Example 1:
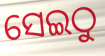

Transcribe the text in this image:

ସେଇଠୁ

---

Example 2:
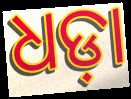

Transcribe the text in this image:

ଧଡ଼ା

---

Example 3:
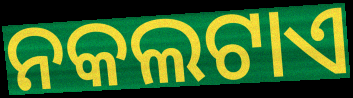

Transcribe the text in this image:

ନକଲଟାଏ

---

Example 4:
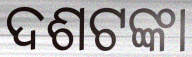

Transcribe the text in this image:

ଦଶଟଙ୍କା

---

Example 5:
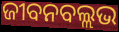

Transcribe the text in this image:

ଜୀବନବଲ୍ଲଭ